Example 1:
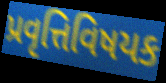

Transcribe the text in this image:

પ્રવૃત્તિવિષયક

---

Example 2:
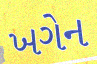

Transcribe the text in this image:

ખગેન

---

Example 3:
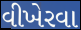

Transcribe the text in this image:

વીખેરવા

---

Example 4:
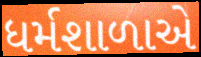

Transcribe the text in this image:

ધર્મશાળાએ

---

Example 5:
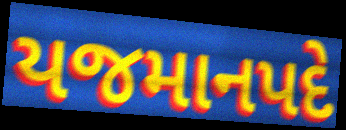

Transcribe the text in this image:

યજમાનપદે